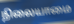
நிலையாமை